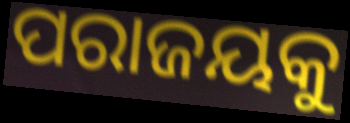
ପରାଜୟକୁ